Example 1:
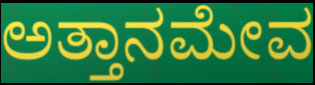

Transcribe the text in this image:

ಅತ್ತಾನಮೇವ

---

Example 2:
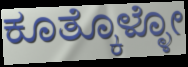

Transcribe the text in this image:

ಕೂತ್ಕೊಳ್ಳೋ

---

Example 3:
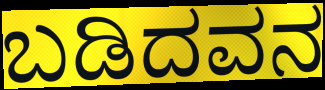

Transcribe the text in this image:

ಬಡಿದವನ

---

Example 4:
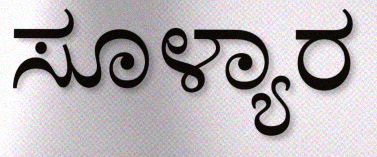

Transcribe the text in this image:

ಸೂಳ್ಯಾರ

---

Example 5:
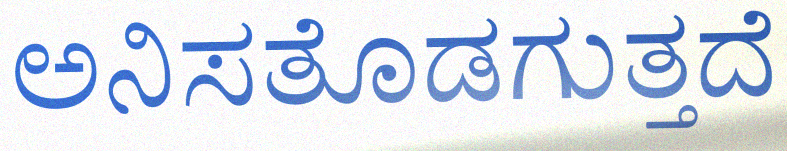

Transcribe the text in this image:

ಅನಿಸತೊಡಗುತ್ತದೆ